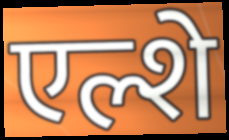
एल्शे